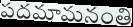
పదమామనంతి